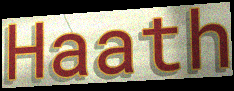
Haath